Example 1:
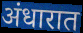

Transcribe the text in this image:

अंधारात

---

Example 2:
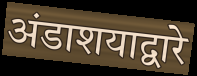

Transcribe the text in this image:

अंडाशयाद्वारे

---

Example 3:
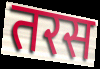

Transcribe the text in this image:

तरस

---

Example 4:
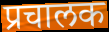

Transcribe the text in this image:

प्रचालक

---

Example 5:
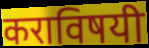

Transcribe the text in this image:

कराविषयी